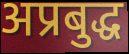
अप्रबुद्ध